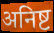
अनिष्ट